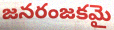
జనరంజకమై